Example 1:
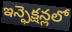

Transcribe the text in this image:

ఇన్ఫెక్షన్లలో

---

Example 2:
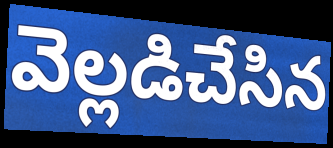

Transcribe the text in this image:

వెల్లడిచేసిన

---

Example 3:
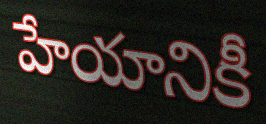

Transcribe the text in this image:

హేయానికీ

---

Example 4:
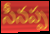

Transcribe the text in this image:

సీనప్ప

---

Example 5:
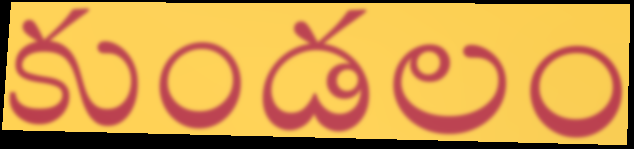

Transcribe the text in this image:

కుండలం